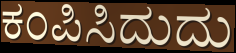
ಕಂಪಿಸಿದುದು